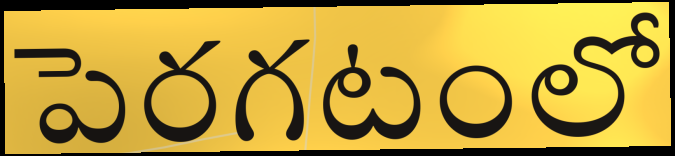
పెరగటంలో